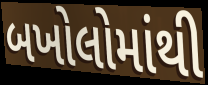
બખોલોમાંથી